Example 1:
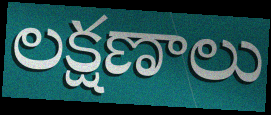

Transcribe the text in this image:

లక్షణాలు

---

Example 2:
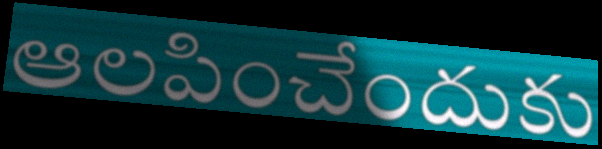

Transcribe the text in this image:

ఆలపించేందుకు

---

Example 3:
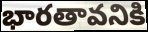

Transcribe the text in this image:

భారతావనికి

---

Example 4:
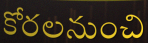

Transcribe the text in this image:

కోరలనుంచి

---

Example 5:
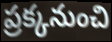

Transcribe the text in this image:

ప్రక్కనుంచి